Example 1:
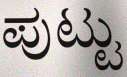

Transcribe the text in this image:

ಪುಟ್ಟು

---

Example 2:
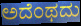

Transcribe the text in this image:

ಅದೆಂಥದು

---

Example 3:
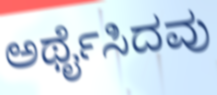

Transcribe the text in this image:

ಅರ್ಥೈಸಿದವು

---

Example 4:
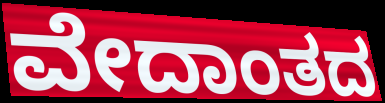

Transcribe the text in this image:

ವೇದಾಂತದ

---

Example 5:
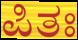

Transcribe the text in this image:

ಪಿತಃ